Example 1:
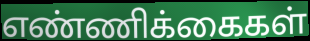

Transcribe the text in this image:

எண்ணிக்கைகள்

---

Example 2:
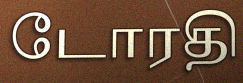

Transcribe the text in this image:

டோரதி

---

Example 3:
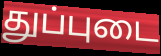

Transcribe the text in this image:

துப்புடை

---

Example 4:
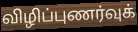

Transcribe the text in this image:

விழிப்புணர்வுக்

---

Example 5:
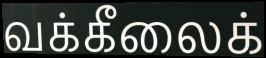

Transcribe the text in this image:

வக்கீலைக்